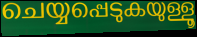
ചെയ്യപ്പെടുകയുള്ളൂ